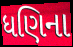
ધણિના